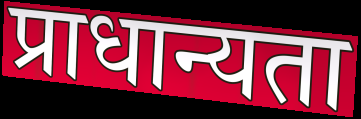
प्राधान्यता